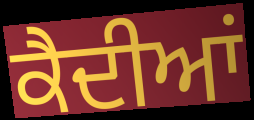
ਕੈਦੀਆਂ